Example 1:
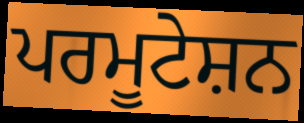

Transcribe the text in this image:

ਪਰਮੂਟੇਸ਼ਨ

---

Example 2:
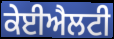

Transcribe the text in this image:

ਕੇਈਐਲਟੀ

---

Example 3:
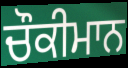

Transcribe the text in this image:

ਚੌਕੀਮਾਨ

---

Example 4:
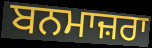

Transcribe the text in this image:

ਬਨਮਾਜ਼ਰਾ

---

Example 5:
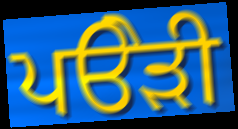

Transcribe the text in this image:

ਪੳੇੜੀ